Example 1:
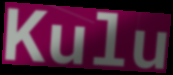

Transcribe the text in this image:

Kulu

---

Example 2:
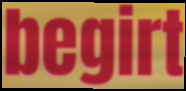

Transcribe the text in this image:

begirt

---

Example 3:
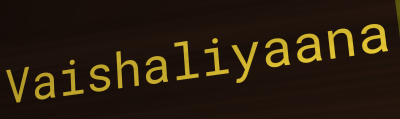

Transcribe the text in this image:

Vaishaliyaana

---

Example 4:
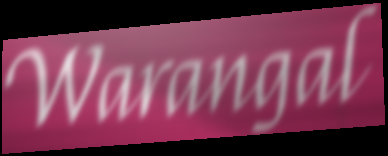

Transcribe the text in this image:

Warangal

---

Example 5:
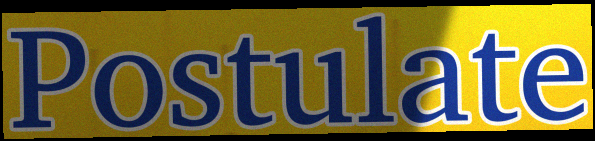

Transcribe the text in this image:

Postulate